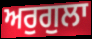
ਅਰੁਗੁਲਾ